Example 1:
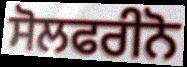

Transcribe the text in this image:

ਸੋਲਫਰੀਨੋ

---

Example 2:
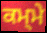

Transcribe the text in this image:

ਕਮ੍ਮੇ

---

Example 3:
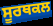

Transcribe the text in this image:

ਸੂਰਥਕਲ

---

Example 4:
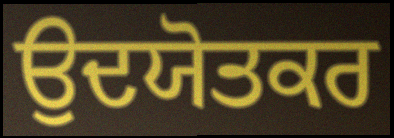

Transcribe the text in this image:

ਉਦਯੋਤਕਰ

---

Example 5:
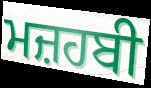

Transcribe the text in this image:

ਮਜ਼ਹਬੀ